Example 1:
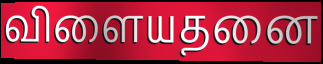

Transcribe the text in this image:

விளையதனை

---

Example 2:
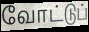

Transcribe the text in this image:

வோட்டுப்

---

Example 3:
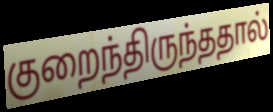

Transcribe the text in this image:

குறைந்திருந்ததால்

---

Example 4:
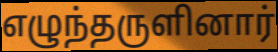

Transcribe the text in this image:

எழுந்தருளினார்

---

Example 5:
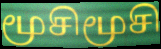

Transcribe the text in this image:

மூசிமூசி